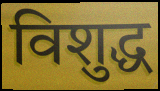
विशुद्ध